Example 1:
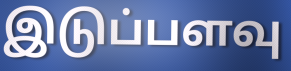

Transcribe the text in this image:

இடுப்பளவு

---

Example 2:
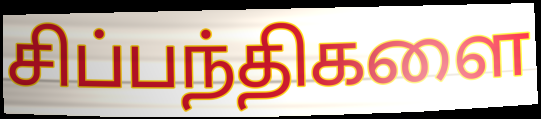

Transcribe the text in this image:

சிப்பந்திகளை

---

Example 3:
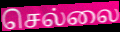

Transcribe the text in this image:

செல்லை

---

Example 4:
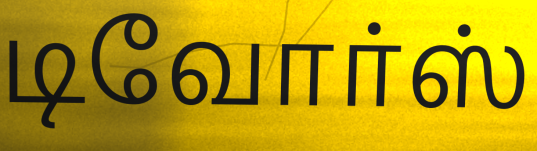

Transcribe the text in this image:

டிவோர்ஸ்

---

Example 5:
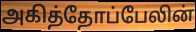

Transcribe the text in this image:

அகித்தோப்பேலின்